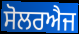
ਸੋਲਰਐਜ